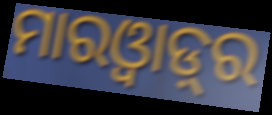
ମାରଓ୍ୱାଡ଼୍‌ର